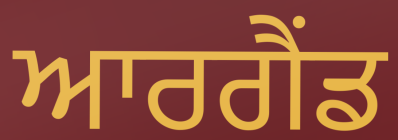
ਆਰਗੈਂਡ